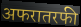
अफरातरफी